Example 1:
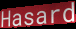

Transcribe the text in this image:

Hasard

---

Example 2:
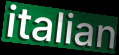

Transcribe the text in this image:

italian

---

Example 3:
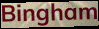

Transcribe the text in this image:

Bingham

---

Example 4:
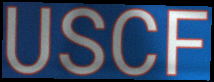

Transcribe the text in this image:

USCF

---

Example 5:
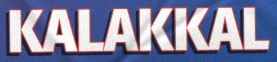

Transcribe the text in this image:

KALAKKAL